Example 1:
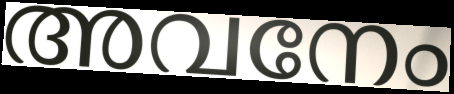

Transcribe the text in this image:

അവനേം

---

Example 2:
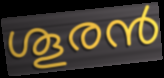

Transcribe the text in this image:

ശൂരൻ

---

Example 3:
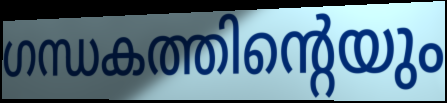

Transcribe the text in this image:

ഗന്ധകത്തിന്റെയും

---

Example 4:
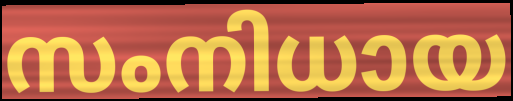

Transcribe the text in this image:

സംനിധായ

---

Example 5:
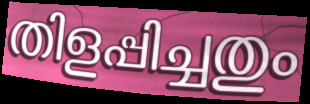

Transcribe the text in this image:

തിളപ്പിച്ചതും